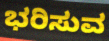
ಭರಿಸುವ